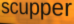
scupper